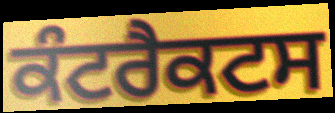
ਕੰਟਰੈਕਟਸ